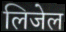
लिजेल